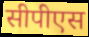
सीपीएस